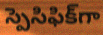
స్పెసిఫిక్‌గా